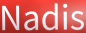
Nadis